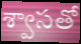
శ్వాసతో